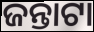
ଜନ୍ତାଟା